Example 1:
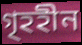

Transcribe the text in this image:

গৃহহীন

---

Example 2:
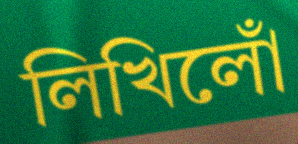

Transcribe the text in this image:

লিখিলোঁ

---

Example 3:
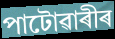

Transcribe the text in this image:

পাটোৱাৰীৰ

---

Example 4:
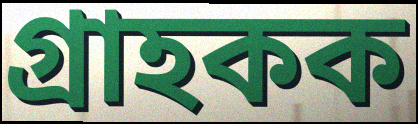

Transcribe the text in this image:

গ্ৰাহকক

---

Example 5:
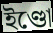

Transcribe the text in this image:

ইণ্ডো